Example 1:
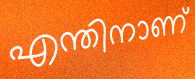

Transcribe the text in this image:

എന്തിനാണ്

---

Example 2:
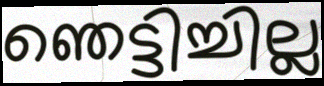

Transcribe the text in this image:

ഞെട്ടിച്ചില്ല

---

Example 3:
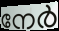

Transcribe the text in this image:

നേർ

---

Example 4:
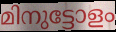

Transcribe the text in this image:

മിനുട്ടോളം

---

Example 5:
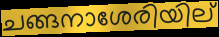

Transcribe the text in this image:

ചങ്ങനാശേരിയില്